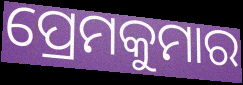
ପ୍ରେମକୁମାର